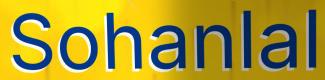
Sohanlal